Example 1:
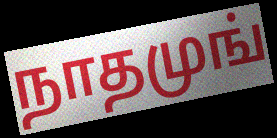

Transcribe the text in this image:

நாதமுங்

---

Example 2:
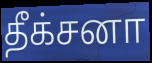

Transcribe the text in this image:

தீக்சனா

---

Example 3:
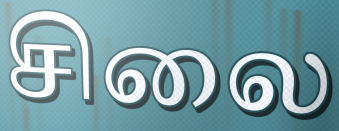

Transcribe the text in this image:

சிலை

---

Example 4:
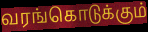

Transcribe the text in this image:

வரங்கொடுக்கும்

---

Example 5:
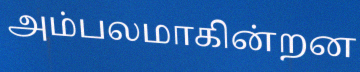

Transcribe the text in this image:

அம்பலமாகின்றன